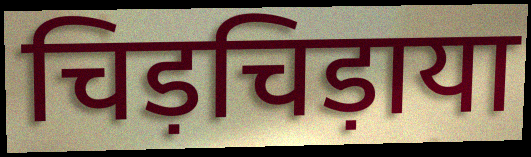
चिड़चिड़ाया